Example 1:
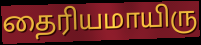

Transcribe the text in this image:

தைரியமாயிரு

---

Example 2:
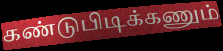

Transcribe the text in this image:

கண்டுபிடிக்கணும்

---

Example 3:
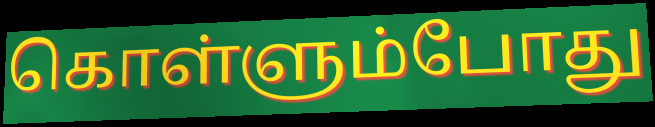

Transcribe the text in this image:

கொள்ளும்போது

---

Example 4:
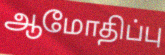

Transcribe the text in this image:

ஆமோதிப்பு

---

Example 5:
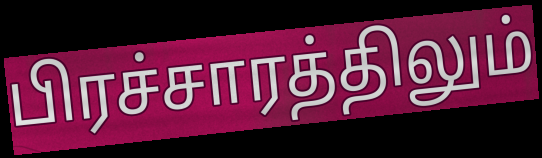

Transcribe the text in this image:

பிரச்சாரத்திலும்